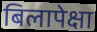
बिलापेक्षा